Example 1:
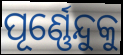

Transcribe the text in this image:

ପୂର୍ଣ୍ଣେନ୍ଦୁକୁ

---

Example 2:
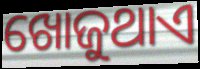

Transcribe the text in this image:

ଖୋଜୁଥାଏ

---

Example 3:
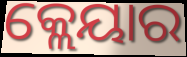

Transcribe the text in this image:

କ୍ଲେୟାର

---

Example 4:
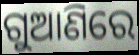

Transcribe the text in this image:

ଗୁଆଣିରେ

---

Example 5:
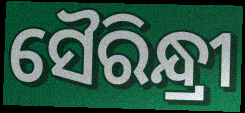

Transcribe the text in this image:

ସୈରିନ୍ଧ୍ରୀ